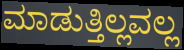
ಮಾಡುತ್ತಿಲ್ಲವಲ್ಲ